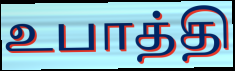
உபாத்தி